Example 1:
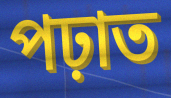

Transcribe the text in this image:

পঢ়াত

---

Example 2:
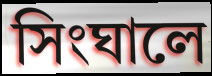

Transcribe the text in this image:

সিংঘালে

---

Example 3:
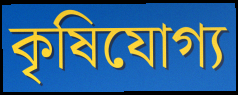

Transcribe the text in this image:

কৃষিযোগ্য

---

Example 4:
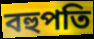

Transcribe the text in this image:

বহুপতি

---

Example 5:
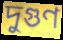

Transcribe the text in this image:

দুগুণ